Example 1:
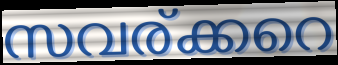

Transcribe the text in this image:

സവര്ക്കറെ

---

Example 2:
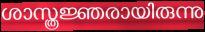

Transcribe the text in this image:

ശാസ്ത്രജ്ഞരായിരുന്നു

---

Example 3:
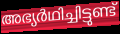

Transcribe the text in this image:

അഭ്യർഥിച്ചിട്ടുണ്ട്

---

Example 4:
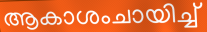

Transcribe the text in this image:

ആകാശംചായിച്ച്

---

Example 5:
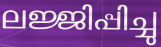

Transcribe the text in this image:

ലജ്ജിപ്പിച്ചു